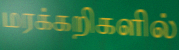
மரக்கறிகளில்